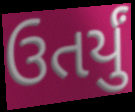
ઉતર્યું